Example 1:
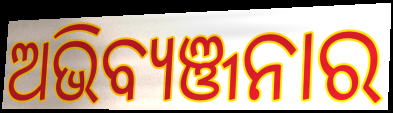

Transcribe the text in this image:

ଅଭିବ୍ୟଞ୍ଜନାର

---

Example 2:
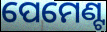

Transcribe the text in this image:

ପେମେଣ୍ଟ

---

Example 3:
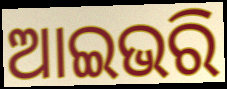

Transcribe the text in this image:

ଆଇଭରି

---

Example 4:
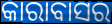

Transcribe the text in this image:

କାରାବାସର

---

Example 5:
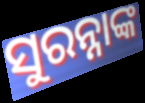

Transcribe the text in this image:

ସୁରନ୍ନାଙ୍କ